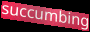
succumbing